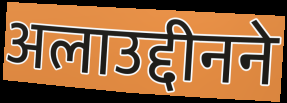
अलाउद्दीनने